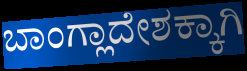
ಬಾಂಗ್ಲಾದೇಶಕ್ಕಾಗಿ